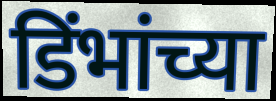
डिंभांच्या